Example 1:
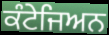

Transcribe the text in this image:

ਕੰਟੇਜਿਅਨ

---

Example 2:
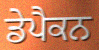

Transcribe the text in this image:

ਡੇਪੈਕਨ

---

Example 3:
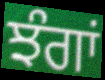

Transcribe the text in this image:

ਝੰਗਾਂ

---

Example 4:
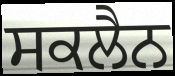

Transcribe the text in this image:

ਸਕਲੈਨ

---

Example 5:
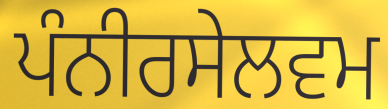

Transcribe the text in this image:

ਪੰਨੀਰਸੇਲਵਮ